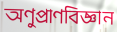
অণুপ্রাণবিজ্ঞান